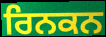
ਰਿਨਕਨ